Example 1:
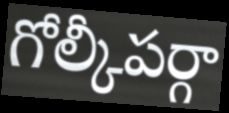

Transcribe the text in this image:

గోల్కీపర్గా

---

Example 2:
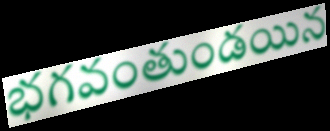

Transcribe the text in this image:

భగవంతుండయిన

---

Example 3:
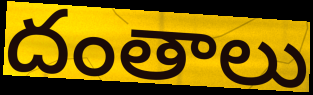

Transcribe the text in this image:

దంతాలు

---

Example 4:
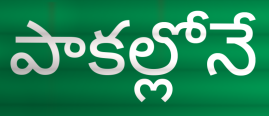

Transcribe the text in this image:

పాకల్లోనే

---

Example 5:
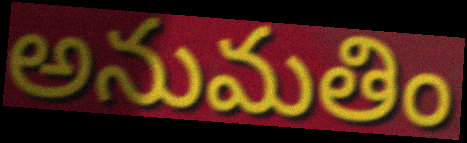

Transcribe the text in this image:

అనుమతిం